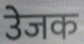
उेजक